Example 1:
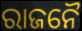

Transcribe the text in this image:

ରାଜନୈ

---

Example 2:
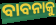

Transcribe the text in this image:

ବାବନାକୁ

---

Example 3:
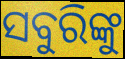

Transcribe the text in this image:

ସବୁରିଙ୍କୁ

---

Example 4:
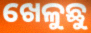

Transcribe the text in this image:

ଖେଳୁଛୁ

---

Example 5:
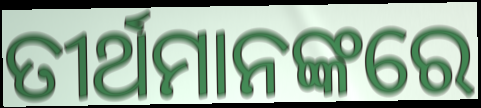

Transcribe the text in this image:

ତୀର୍ଥମାନଙ୍କରେ